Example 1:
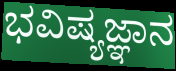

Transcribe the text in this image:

ಭವಿಷ್ಯಜ್ಞಾನ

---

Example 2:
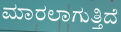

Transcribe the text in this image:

ಮಾರಲಾಗುತ್ತಿದೆ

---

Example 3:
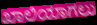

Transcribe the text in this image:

ಖಾಲಿಯಾಗಲು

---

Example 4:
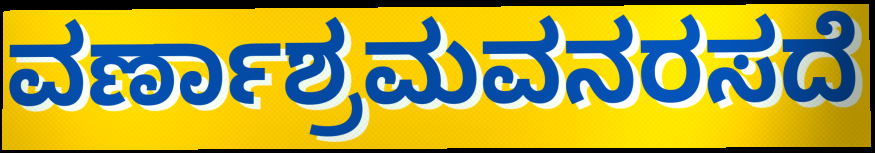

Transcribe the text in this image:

ವರ್ಣಾಶ್ರಮವನರಸದೆ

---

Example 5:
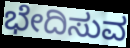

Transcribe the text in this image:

ಭೇದಿಸುವ